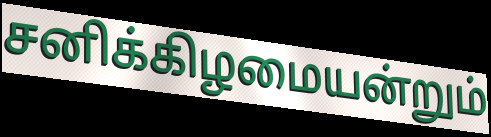
சனிக்கிழமையன்றும்